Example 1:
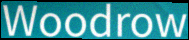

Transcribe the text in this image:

Woodrow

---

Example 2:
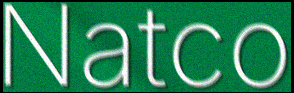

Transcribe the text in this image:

Natco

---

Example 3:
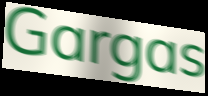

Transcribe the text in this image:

Gargas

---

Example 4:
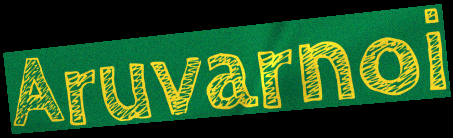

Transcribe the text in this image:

Aruvarnoi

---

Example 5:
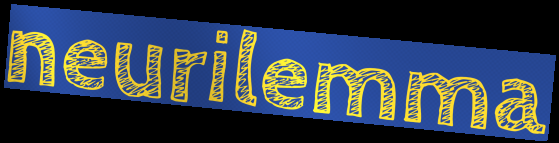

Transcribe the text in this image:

neurilemma